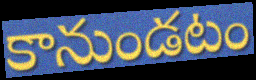
కానుండటం